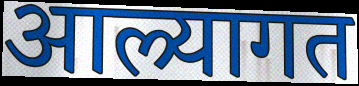
आल्यागत